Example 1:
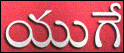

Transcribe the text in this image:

యుగే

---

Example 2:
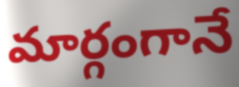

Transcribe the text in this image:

మార్గంగానే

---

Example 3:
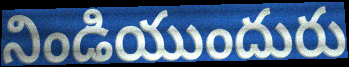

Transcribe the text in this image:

నిండియుందురు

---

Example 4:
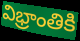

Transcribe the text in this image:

విభ్రాంతికి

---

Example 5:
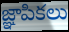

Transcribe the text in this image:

జ్ఞాపికలు